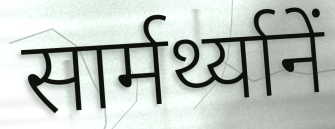
सार्मर्थ्यानें